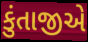
કુંતાજીએ